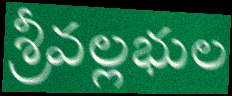
శ్రీవల్లభుల